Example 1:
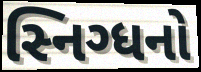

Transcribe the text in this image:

સ્નિગ્ધનો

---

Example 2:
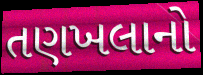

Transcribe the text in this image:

તણખલાનો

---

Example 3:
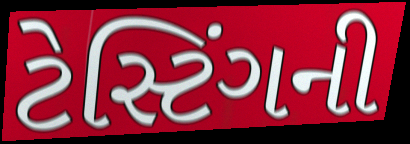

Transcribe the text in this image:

ટેસ્ટિંગની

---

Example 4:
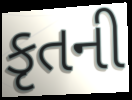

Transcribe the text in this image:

કૃતની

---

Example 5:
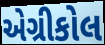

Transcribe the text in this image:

એગ્રીકોલ